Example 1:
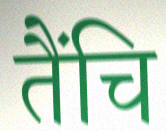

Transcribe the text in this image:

तैंचि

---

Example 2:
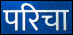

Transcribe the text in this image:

परिचा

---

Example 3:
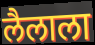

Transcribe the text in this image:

लैलाला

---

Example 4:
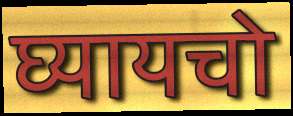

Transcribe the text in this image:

घ्यायचो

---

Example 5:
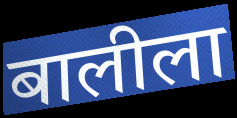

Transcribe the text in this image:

बालीला